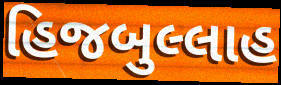
હિજબુલ્લાહ